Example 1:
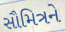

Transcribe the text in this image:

સૌમિત્રને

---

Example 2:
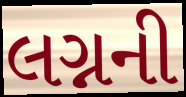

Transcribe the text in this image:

લગ્નની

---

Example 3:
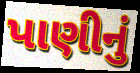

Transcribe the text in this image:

પાણીનું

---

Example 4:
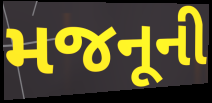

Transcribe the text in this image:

મજનૂની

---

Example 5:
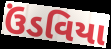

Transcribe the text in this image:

ઉંડવિયા